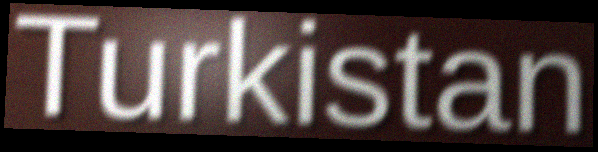
Turkistan